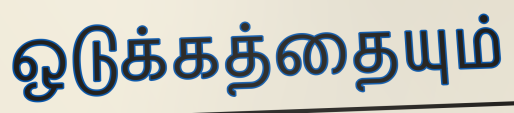
ஒடுக்கத்தையும்